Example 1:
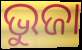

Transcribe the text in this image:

ଭୁଜା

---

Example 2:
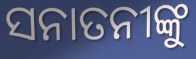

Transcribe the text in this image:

ସନାତନୀଙ୍କୁ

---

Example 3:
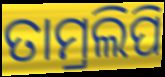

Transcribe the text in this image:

ତାମ୍ରଲିପି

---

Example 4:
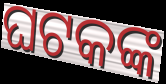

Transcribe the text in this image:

ଘଟକଙ୍କ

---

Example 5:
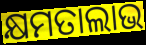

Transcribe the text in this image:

କ୍ଷମତାଲାଭ